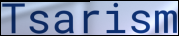
Tsarism